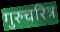
गुरुचरित्र